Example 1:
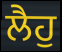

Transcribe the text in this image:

ਲੈਹੁ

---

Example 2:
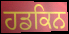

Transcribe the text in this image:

ਹਡਕਿਨ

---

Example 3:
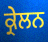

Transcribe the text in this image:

ਕ੍ਰੇਲਨ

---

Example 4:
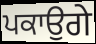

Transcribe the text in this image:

ਪਕਾਉਗੇ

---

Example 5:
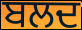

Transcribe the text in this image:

ਬਲਦ